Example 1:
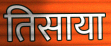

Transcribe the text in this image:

तिसाया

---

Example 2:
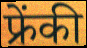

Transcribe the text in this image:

फ्रेंकी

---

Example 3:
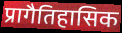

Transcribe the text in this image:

प्रागैतिहासिक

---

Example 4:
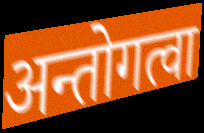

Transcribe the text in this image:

अन्तोगत्वा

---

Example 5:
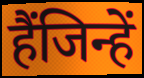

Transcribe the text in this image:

हैंजिन्हें